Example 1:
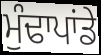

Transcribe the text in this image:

ਮੁੰਢਾਪਾਂਡੇ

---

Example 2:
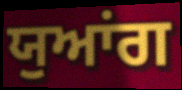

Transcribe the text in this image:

ਯੁਆਂਗ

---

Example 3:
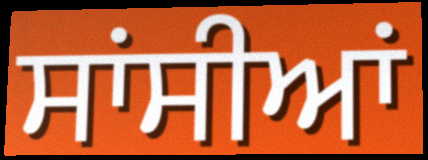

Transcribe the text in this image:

ਸਾਂਸੀਆਂ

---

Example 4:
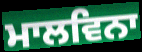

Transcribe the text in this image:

ਮਾਲਵਿਨਾ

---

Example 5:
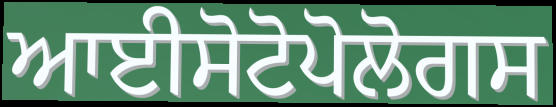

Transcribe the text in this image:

ਆਈਸੋਟੋਪੋਲੋਗਸ